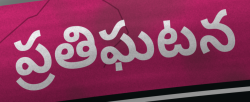
ప్రతిఘటన